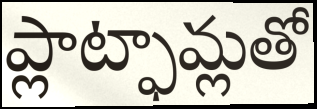
ప్లాట్ఫామ్లతో